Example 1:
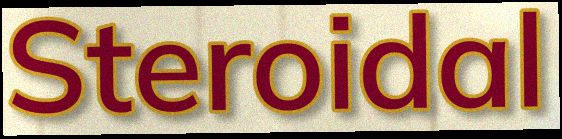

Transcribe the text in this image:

Steroidal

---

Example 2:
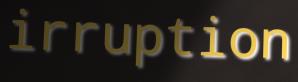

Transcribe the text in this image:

irruption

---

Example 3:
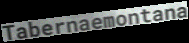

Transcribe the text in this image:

Tabernaemontana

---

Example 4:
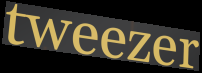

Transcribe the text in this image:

tweezer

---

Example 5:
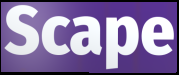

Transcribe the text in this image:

Scape